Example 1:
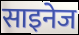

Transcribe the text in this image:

साइनेज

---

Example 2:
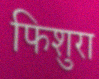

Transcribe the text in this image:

फिशुरा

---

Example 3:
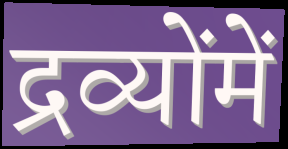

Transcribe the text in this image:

द्रव्योंमें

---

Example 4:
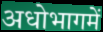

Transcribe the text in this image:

अधोभागमें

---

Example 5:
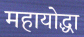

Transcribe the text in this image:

महायोद्धा